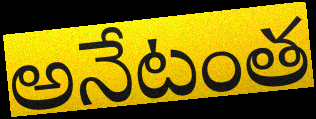
అనేటంత